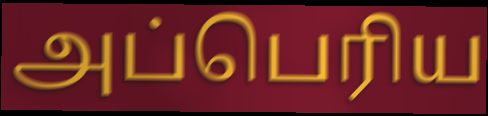
அப்பெரிய